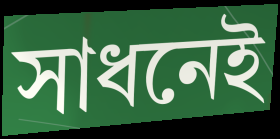
সাধনেই